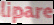
lipare